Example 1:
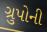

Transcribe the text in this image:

ગ્રુપોની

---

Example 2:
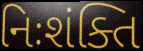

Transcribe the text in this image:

નિઃશંક્તિ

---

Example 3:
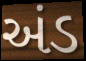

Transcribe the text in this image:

અંડ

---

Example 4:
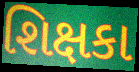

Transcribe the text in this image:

શિક્ષકા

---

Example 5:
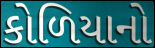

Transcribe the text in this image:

કોળિયાનો